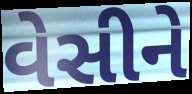
વેસીને